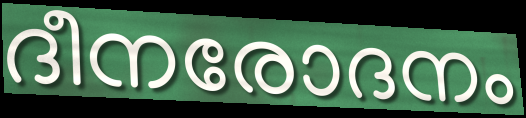
ദീനരോദനം